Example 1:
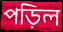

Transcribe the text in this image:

পড়িল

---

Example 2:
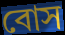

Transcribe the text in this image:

বোস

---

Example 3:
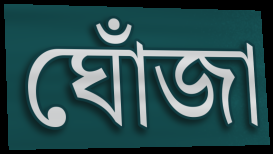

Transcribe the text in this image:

ঘোঁজা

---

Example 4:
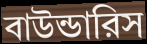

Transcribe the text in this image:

বাউন্ডারিস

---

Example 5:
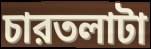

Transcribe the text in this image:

চারতলাটা